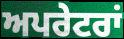
ਅਪਰੇਟਰਾਂ